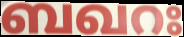
ബഖറഃ